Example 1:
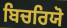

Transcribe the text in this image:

ਬਿਚਰਿਯੋ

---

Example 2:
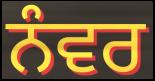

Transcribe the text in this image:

ਨੰਵਰ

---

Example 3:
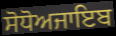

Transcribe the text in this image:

ਸੋਧੋਅਜਾਇਬ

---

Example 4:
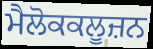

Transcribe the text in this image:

ਮੈਲੋਕਕਲੂਜ਼ਨ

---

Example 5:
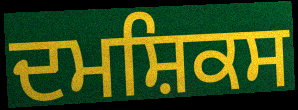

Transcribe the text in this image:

ਦਮਸ਼ਿਕਸ